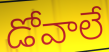
డోవాలే